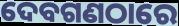
ଦେବଗଣଠାରେ